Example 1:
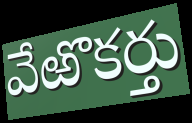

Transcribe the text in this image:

వేఱొకర్తు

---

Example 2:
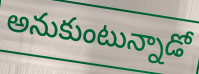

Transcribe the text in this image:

అనుకుంటున్నాడో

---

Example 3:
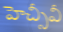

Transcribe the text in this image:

హెచ్సీవీ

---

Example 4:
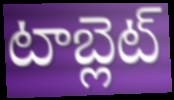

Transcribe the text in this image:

టాబ్లెట్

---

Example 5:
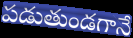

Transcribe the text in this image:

పడుతుండగానే